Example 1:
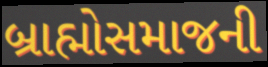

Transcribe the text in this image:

બ્રાહ્મોસમાજની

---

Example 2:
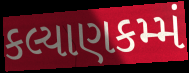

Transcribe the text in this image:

કલ્યાણકમ્મં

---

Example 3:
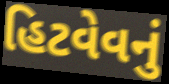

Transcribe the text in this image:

હિટવેવનું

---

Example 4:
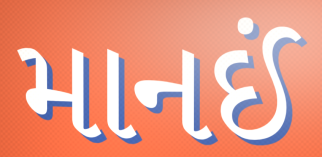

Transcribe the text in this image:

માનઈં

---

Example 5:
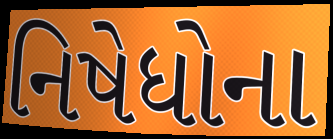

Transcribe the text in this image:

નિષેધોના